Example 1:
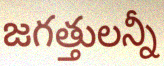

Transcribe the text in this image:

జగత్తులన్నీ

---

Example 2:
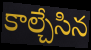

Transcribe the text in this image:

కాల్చేసిన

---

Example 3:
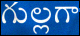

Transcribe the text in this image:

గుల్లగా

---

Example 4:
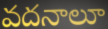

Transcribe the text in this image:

వదనాలూ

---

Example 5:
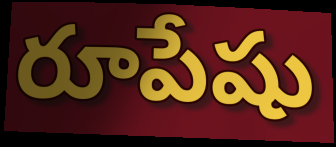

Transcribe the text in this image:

రూపేషు